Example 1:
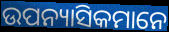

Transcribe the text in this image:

ଉପନ୍ୟାସିକମାନେ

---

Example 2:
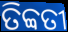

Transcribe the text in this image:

ତିବ୍ବତୀ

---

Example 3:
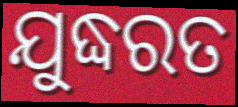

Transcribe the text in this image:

ଯୁଦ୍ଧରତ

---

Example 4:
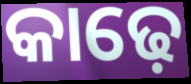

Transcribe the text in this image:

କାଢ଼େ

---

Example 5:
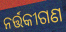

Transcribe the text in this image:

ନର୍ତ୍ତକୀଗଣ